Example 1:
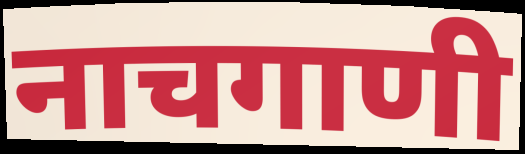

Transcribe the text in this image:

नाचगाणी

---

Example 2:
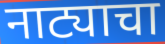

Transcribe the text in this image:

नाट्याचा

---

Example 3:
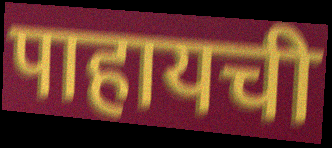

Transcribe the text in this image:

पाहायची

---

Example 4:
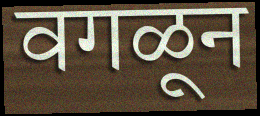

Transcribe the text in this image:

वगळून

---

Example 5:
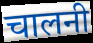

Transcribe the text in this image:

चालनी